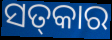
ସତ୍‌କାର